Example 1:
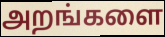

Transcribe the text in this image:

அறங்களை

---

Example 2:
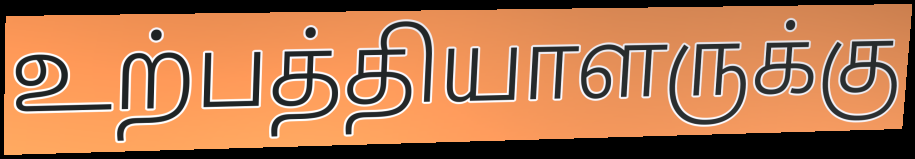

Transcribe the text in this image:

உற்பத்தியாளருக்கு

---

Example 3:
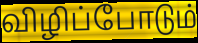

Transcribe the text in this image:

விழிப்போடும்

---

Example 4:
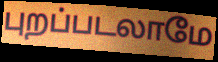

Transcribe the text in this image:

புறப்படலாமே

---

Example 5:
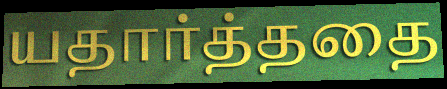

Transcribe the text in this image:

யதார்த்ததை